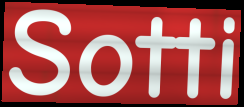
Sotti